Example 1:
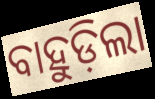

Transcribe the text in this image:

ବାହୁଡ଼ିଲା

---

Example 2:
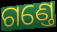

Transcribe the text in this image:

ଗଣ୍ତେ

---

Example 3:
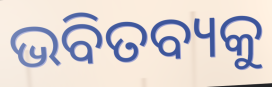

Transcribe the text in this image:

ଭବିତବ୍ୟକୁ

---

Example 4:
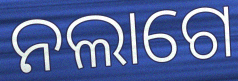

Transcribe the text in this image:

ନଲାଗେ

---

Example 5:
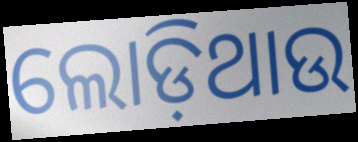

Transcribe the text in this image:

ଲୋଡ଼ିଥାଉ